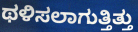
ಥಳಿಸಲಾಗುತ್ತಿತ್ತು